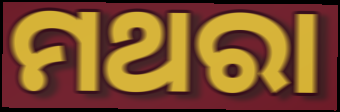
ମଥରା